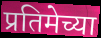
प्रतिमेच्या